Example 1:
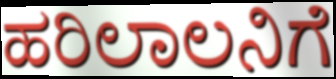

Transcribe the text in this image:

ಹರಿಲಾಲನಿಗೆ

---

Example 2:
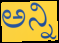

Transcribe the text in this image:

ಅನ್ನಿ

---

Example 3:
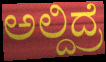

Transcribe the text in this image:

ಅಲ್ದಿದ್ರೆ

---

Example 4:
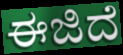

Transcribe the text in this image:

ಈಜಿದೆ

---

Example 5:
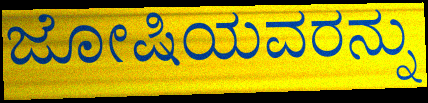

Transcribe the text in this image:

ಜೋಷಿಯವರನ್ನು